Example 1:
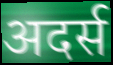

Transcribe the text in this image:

अदर्स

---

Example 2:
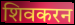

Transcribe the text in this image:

शिवकरन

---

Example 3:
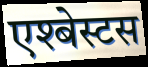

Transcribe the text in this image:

एश्बेस्टस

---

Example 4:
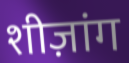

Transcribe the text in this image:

शीज़ांग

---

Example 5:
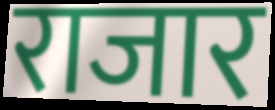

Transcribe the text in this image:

राजार